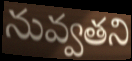
నువ్వతని